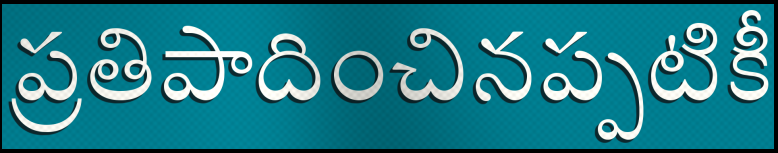
ప్రతిపాదించినప్పటికీ